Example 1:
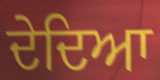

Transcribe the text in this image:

ਦੇਦਿਆ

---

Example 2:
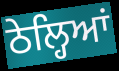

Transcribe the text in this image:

ਠੇਲ੍ਹਿਆਂ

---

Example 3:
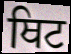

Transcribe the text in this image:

ਥਿਟ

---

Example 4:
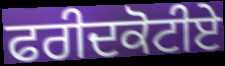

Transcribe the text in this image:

ਫਰੀਦਕੋਟੀਏ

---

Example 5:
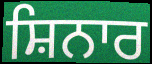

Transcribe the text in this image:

ਸ਼ਿਨਾਰ